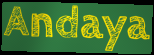
Andaya